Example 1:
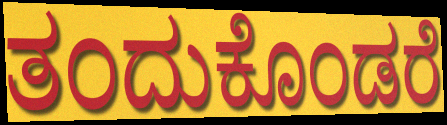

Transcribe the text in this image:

ತಂದುಕೊಂಡರೆ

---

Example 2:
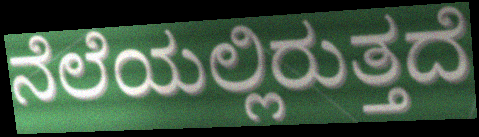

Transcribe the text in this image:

ನೆಲೆಯಲ್ಲಿರುತ್ತದೆ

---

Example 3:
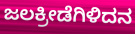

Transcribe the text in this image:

ಜಲಕ್ರೀಡೆಗಿಳಿದನ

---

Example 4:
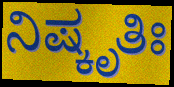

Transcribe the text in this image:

ನಿಷ್ಕೃತಿಃ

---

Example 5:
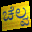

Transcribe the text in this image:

ಚೆಲ್ವ